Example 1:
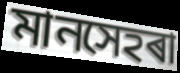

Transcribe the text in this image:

মানসেহৰা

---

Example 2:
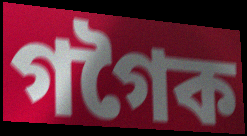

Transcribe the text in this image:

গগৈক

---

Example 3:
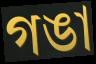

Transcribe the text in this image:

গঙা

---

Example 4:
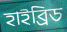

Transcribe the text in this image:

হাইব্ৰিড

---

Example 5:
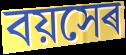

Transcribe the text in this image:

বয়সেৰ